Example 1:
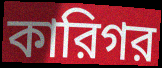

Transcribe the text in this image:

কারিগর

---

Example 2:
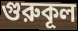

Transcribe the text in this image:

গুরুকূল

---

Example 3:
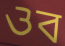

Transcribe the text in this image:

ওব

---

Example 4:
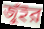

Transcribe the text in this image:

জুঁইর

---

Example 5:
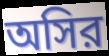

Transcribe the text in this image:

অসির